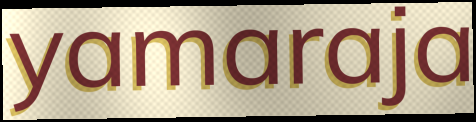
yamaraja